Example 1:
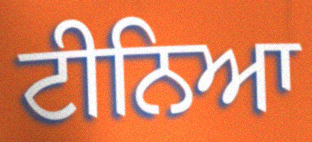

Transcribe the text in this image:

ਟੀਨਿਆ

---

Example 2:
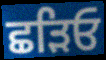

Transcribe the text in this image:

ਛੜਿਓ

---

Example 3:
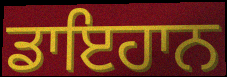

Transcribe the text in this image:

ਡਾਇਹਾਨ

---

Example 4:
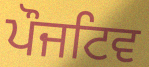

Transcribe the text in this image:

ਪੌਜਟਿਵ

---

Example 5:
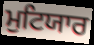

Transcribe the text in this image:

ਮੁਟਿਯਾਰ